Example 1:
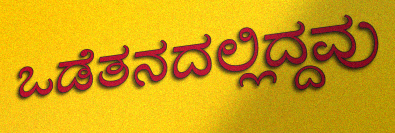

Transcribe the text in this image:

ಒಡೆತನದಲ್ಲಿದ್ದವು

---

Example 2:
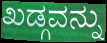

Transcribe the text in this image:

ಖಡ್ಗವನ್ನು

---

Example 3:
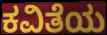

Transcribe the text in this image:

ಕವಿತೆಯ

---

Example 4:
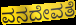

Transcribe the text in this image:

ವನದೇವತೆ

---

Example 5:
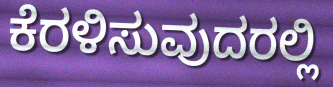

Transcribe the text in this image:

ಕೆರಳಿಸುವುದರಲ್ಲಿ